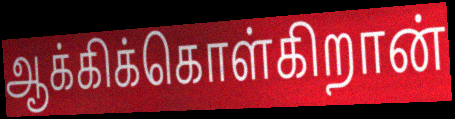
ஆக்கிக்கொள்கிறான்